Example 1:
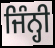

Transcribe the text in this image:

ਜਿੰਨ੍ਹੀ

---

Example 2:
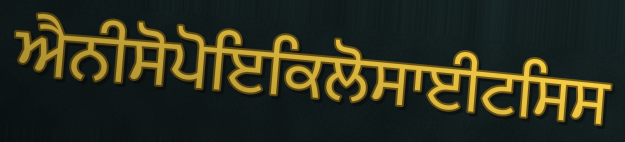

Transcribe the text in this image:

ਐਨੀਸੋਪੋਇਕਿਲੋਸਾਈਟਸਿਸ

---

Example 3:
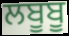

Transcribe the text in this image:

ਲਬੂਬੂ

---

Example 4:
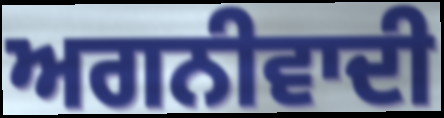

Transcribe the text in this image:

ਅਗਨੀਵਾਦੀ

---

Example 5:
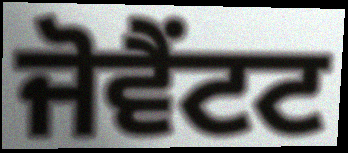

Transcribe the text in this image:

ਜੋਵੈਂਟਟ